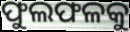
ଫୁଲଫଳକୁ